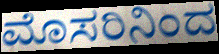
ಮೊಸರಿನಿಂದ